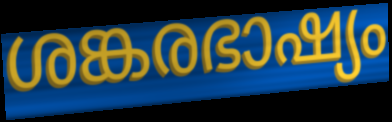
ശങ്കരഭാഷ്യം